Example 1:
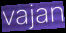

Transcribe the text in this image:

vajan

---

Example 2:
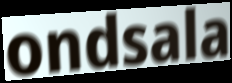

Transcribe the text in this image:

ondsala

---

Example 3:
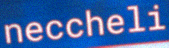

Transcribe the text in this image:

neccheli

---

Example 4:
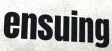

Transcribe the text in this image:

ensuing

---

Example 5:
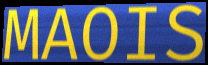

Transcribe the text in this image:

MAOIS